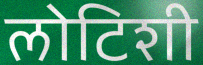
लोटिशी